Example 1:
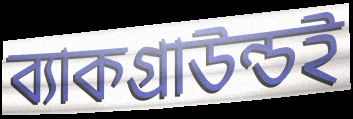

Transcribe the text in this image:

ব্যাকগ্রাউন্ডই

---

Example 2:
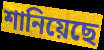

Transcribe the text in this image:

শানিয়েছে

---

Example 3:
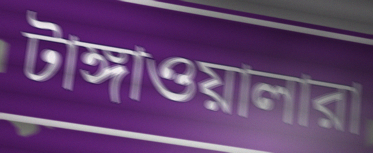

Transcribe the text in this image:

টাঙ্গাওয়ালারা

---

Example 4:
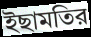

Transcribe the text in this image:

ইছামতির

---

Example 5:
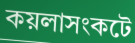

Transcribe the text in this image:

কয়লাসংকটে